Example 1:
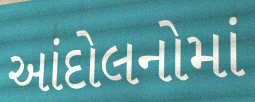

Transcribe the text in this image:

આંદોલનોમાં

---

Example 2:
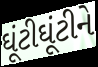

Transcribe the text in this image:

ઘૂંટીઘૂંટીને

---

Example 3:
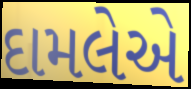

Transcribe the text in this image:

દામલેએ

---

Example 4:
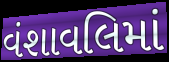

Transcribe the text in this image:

વંશાવલિમાં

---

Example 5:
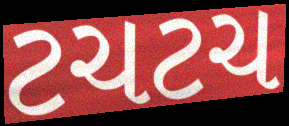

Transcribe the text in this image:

ટચટચ